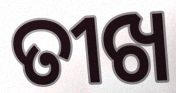
ତୀଖ